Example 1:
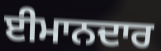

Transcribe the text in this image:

ਈਮਾਨਦਾਰ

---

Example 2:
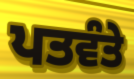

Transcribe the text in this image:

ਪਤਵੰਤੇ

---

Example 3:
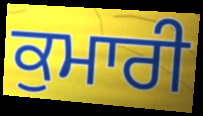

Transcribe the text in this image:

ਕੁਮਾਰੀ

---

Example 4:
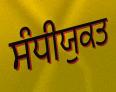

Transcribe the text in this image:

ਸੰਧੀਯੁਕਤ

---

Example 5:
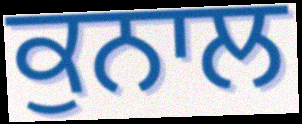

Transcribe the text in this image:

ਕੁਨਾਲ